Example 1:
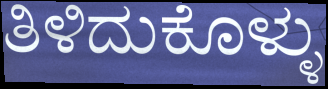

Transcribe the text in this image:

ತಿಳಿದುಕೊಳ್ಳು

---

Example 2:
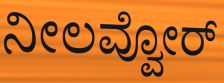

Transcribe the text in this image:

ನೀಲವ್ವೋರ್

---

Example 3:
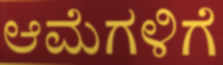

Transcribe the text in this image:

ಆಮೆಗಳಿಗೆ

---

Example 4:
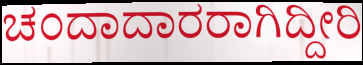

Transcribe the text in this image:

ಚಂದಾದಾರರಾಗಿದ್ದೀರಿ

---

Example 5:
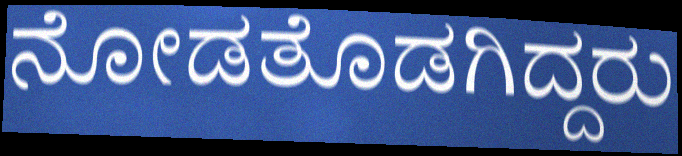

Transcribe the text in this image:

ನೋಡತೊಡಗಿದ್ದರು